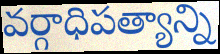
వర్గాధిపత్యాన్ని